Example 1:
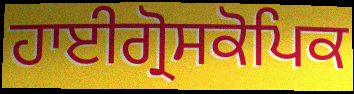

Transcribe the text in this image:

ਹਾਈਗ੍ਰੋਸਕੋਪਿਕ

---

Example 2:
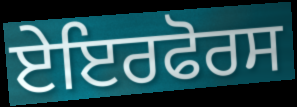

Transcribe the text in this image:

ਏਇਰਫੋਰਸ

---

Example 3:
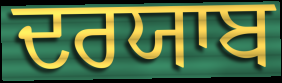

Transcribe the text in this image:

ਦਰਯਾਬ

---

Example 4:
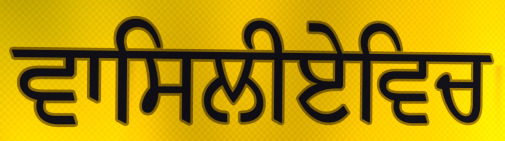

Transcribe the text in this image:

ਵਾਸਿਲੀਏਵਿਚ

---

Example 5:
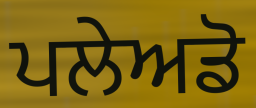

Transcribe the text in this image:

ਪਲੇਅਡੋ